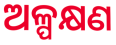
ଅଳ୍ପକ୍ଷଣ